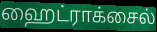
ஹைட்ராக்சைல்